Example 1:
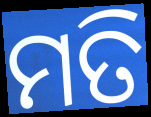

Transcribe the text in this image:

ମତି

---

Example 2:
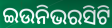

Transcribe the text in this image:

ଇଉନିଭରସିଟି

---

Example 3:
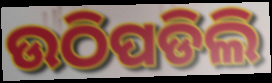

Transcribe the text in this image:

ଉଠିପଡିଲି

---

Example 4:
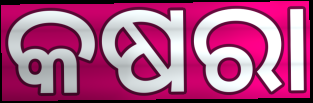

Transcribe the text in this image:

କଷରା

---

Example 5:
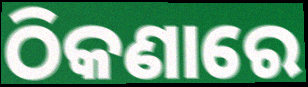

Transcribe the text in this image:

ଠିକଣାରେ